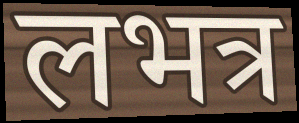
लभत्र